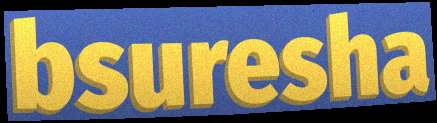
bsuresha